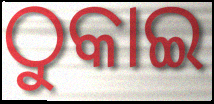
ଠୁକାଇ